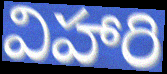
విహారి